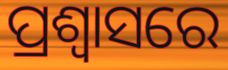
ପ୍ରଶ୍ବାସରେ